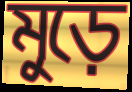
মুড়ে